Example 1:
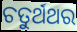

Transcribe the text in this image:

ଚତୁର୍ଥଥର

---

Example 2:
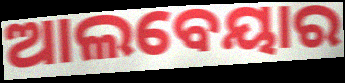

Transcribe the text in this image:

ଆଲବେୟାର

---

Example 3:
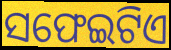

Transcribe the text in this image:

ସଫେଇଟିଏ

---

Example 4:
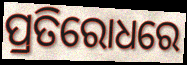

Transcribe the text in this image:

ପ୍ରତିରୋଧରେ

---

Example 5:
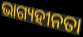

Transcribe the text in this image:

ଭାଗ୍ୟହୀନତା